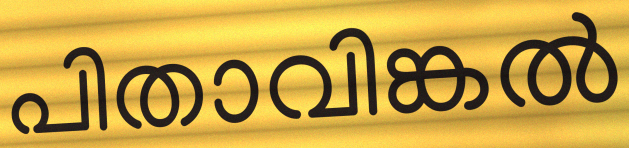
പിതാവിങ്കൽ